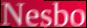
Nesbo